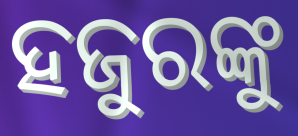
ହଜୁରଙ୍କୁ